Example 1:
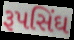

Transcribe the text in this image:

રૂપસિંઘ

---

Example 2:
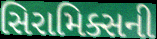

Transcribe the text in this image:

સિરામિક્સની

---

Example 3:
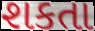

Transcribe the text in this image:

શકતા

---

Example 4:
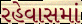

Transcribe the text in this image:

રહેવાસમાં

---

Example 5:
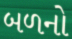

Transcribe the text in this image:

બળનો